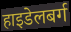
हाइडेलबर्ग